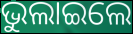
ଭୁଲାଇଲେ